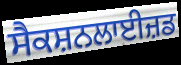
ਸੈਕਸ਼ਨਲਾਈਜ਼ਡ